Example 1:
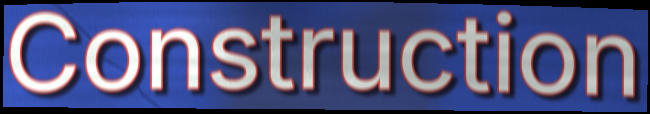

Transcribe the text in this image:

Construction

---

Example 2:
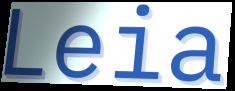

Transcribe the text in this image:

Leia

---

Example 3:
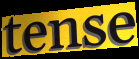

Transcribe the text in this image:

tense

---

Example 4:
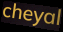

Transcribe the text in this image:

cheyal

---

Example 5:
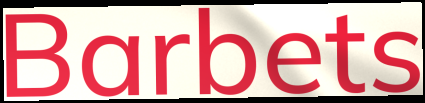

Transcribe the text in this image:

Barbets